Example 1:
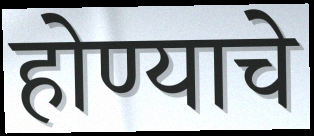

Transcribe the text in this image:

होण्याचे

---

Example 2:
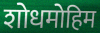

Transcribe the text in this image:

शोधमोहिम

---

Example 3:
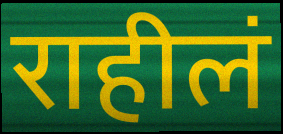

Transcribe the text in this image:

राहीलं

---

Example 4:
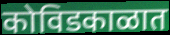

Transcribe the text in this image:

कोविडकाळात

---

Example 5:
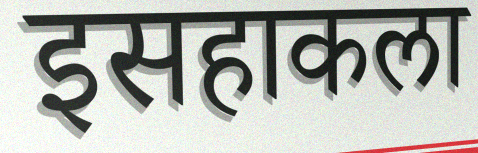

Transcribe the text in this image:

इसहाकला